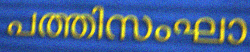
പത്തിസംഘാ